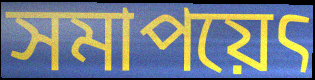
সমাপয়েৎ